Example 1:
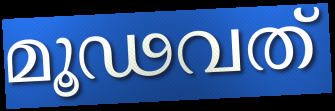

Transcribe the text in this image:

മൂഢവത്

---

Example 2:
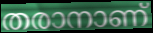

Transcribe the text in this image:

തരാനാണ്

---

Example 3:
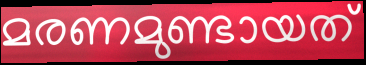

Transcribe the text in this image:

മരണമുണ്ടായത്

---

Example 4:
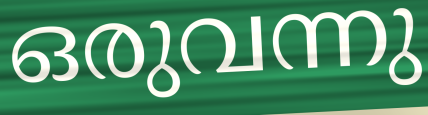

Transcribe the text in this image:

ഒരുവന്നു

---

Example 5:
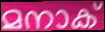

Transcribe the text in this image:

മനാക്